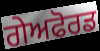
ਗੇਅਫੋਰਡ